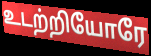
உடற்றியோரே